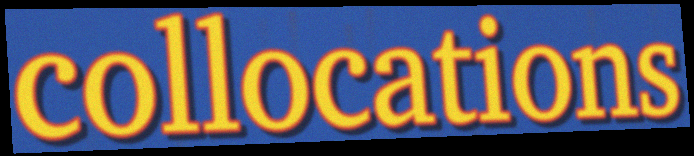
collocations